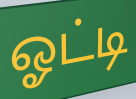
ஓட்டி